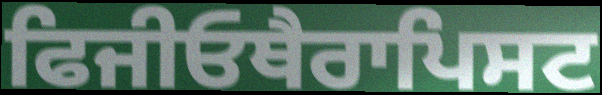
ਫਿਜੀਓਥੈਰਾਪਿਸਟ